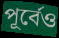
পূৰ্বেও